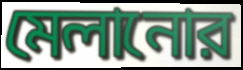
মেলানোর